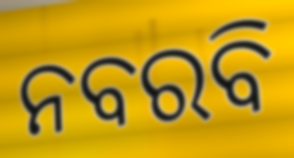
ନବରବି